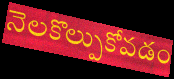
నెలకొల్పుకోవడం